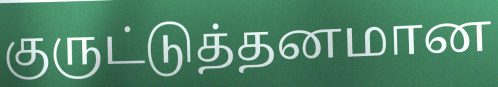
குருட்டுத்தனமான